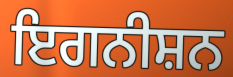
ਇਗਨੀਸ਼ਨ